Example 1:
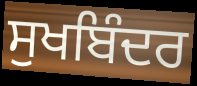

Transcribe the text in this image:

ਸੁਖਬਿੰਦਰ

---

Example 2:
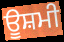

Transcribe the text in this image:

ਊਸ਼ਮੀ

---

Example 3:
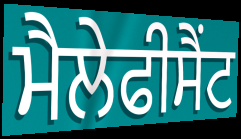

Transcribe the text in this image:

ਮੈਲੇਫੀਸੈਂਟ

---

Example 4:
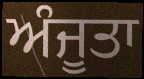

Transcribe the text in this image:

ਅੰਜੂਤਾ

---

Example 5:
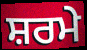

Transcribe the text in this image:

ਸ਼ਰਮੇ